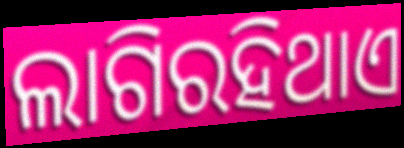
ଲାଗିରହିଥାଏ